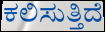
ಕಲಿಸುತ್ತಿದೆ